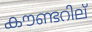
കൗണ്ടറില്